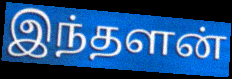
இந்தளன்